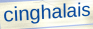
cinghalais